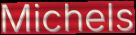
Michels